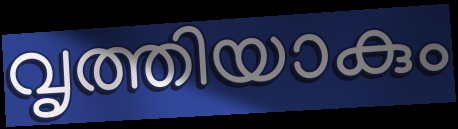
വൃത്തിയാകും